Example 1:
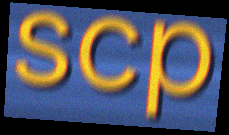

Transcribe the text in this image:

scp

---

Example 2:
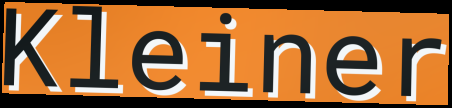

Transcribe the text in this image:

Kleiner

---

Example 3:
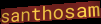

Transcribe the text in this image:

santhosam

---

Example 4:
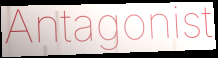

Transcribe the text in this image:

Antagonist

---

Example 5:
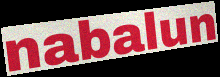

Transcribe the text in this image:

nabalun